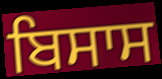
ਬਿਸਾਸ